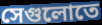
সেগুলোতে